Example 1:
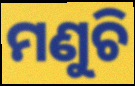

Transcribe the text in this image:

ମଣୁଚି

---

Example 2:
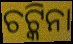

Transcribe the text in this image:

ଚଟ୍କିନା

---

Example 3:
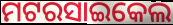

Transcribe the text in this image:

ମଟରସାଇକେଲ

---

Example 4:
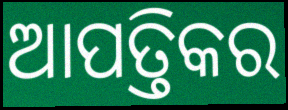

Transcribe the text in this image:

ଆପତ୍ତିକର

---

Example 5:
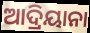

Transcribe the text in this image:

ଆଦ୍ରିୟାନା